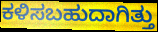
ಕಳಿಸಬಹುದಾಗಿತ್ತು